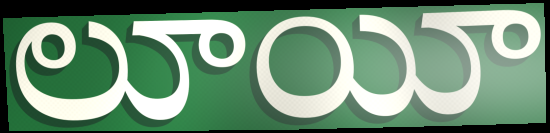
లూయీ